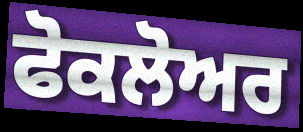
ਫੋਕਲੋਅਰ